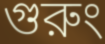
গুরুং